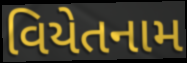
વિયેતનામ